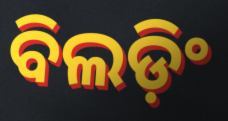
ବିଲଡ଼ିଂ